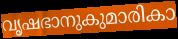
വൃഷഭാനുകുമാരികാ